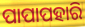
ପାପାପହାରି